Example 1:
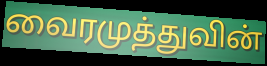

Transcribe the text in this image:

வைரமுத்துவின்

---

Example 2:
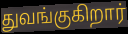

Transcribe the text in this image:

துவங்குகிறார்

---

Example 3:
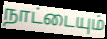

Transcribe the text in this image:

நாட்டையும்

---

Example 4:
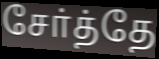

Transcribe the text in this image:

சேர்த்தே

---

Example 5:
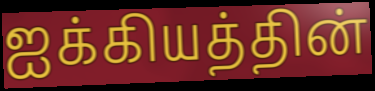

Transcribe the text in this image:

ஐக்கியத்தின்